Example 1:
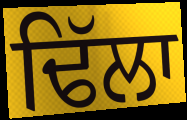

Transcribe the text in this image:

ਢਿੱਲਾ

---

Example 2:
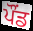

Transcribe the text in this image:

ਪੌਂਡ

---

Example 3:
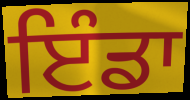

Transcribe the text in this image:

ਇੰਡਾ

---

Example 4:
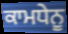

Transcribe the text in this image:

ਕਾਮਧੇਨੂ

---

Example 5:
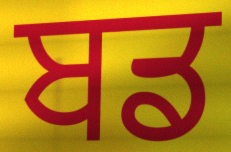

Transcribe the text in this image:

ਬਡ